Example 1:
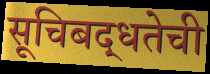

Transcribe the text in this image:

सूचिबद्धतेची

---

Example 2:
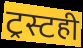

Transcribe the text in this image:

ट्रस्टही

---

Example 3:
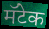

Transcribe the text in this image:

मॅटेक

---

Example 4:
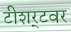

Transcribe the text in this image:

टीशर्टवर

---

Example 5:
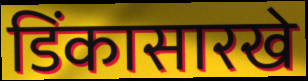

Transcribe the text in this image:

डिंकासारखे